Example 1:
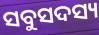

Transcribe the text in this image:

ସବୁସଦସ୍ୟ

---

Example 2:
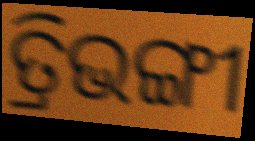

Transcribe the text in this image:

ତ୍ରିଭଙ୍ଗୀ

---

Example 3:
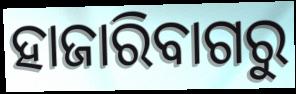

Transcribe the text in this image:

ହାଜାରିବାଗରୁ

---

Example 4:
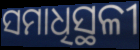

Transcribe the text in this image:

ସମାଧିସ୍ଥଳୀ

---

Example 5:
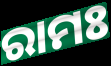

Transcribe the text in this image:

ରାମଃ